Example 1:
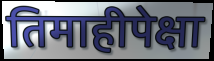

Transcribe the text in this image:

तिमाहीपेक्षा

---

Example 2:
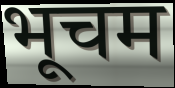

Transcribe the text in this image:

भूचम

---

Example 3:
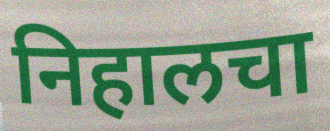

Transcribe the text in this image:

निहालचा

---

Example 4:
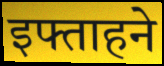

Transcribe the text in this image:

इफ्ताहने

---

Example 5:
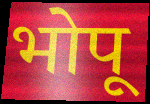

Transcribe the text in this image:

भोपू